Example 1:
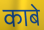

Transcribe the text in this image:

काबे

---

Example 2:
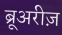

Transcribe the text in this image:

ब्रूअरीज़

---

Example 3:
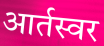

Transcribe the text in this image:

आर्तस्वर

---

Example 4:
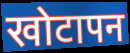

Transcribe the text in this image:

खोटापन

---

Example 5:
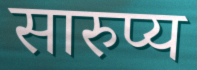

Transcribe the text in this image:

सारुप्य